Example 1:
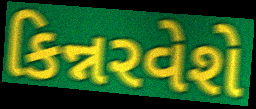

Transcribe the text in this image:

કિન્નરવેશે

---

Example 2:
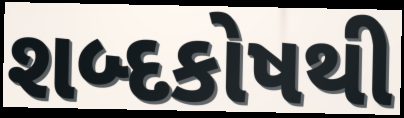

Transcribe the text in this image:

શબ્દકોષથી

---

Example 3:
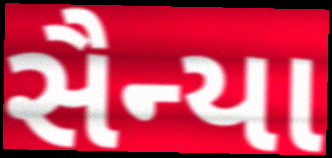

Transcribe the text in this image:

સૈન્યા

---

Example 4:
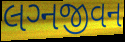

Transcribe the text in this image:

લગ્‍નજીવન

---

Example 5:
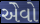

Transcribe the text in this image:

એેવો